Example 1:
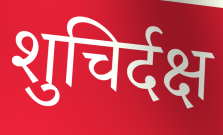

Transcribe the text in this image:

शुचिर्दक्ष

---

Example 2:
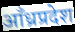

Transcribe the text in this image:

आँध्रप्रदेश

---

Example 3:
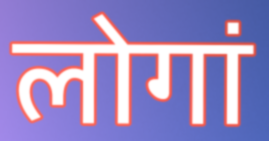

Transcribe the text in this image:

लोगां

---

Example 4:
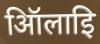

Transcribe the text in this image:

ऑिलाइि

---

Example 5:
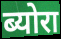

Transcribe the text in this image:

ब्योरा